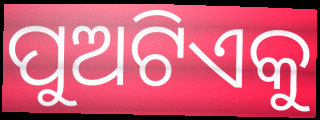
ପୁଅଟିଏକୁ